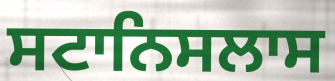
ਸਟਾਨਿਸਲਾਸ